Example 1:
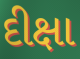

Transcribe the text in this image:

દીક્ષા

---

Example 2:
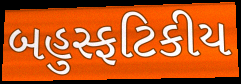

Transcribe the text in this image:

બહુસ્ફટિકીય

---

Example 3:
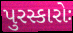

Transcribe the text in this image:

પુરસ્કારોઃ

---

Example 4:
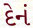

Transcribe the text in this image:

દેનં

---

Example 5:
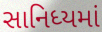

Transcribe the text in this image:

સાનિધ્યમાં